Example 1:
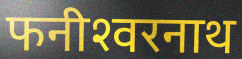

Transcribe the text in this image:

फनीश्वरनाथ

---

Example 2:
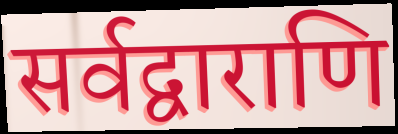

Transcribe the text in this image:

सर्वद्वाराणि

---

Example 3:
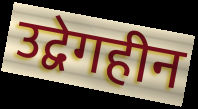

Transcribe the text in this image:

उद्वेगहीन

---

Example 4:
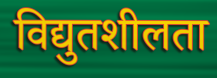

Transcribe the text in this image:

विद्युतशीलता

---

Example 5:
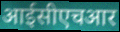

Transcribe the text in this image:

आईसीएचआर